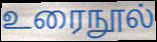
உரைநூல்